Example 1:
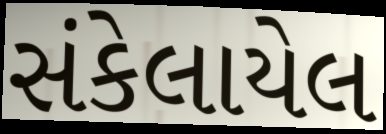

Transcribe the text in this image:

સંકેલાયેલ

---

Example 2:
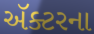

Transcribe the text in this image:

ઍક્ટરના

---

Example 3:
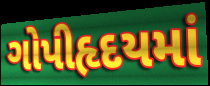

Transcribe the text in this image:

ગોપીહૃદયમાં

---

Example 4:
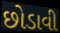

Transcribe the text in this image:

છોડાવી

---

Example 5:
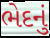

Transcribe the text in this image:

ભેદનું